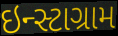
ઇન્સ્ટાગ્રામ